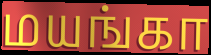
மயங்கா